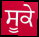
ਸੂਕੇ